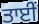
ਤਾਈਂ